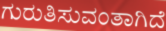
ಗುರುತಿಸುವಂತಾಗಿದೆ